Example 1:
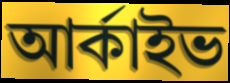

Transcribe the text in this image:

আর্কাইভ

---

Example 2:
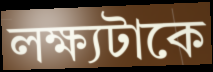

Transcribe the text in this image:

লক্ষ্যটাকে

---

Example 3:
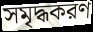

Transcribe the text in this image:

সমৃদ্ধকরণ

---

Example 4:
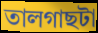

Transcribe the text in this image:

তালগাছটা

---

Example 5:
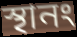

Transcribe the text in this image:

স্থানং